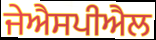
ਜੇਐਸਪੀਐਲ